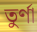
তুর্ণা